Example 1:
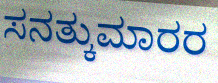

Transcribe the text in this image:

ಸನತ್ಕುಮಾರರ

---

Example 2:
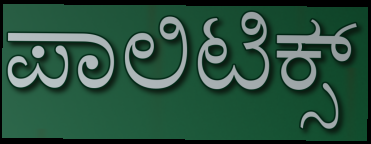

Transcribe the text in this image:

ಪಾಲಿಟಿಕ್ಸ್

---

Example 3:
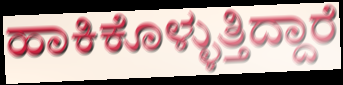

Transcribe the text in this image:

ಹಾಕಿಕೊಳ್ಳುತ್ತಿದ್ದಾರೆ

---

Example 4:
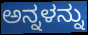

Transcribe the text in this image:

ಅನ್ನಳನ್ನು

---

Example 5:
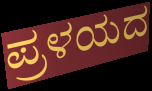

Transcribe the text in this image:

ಪ್ರಳಯದ